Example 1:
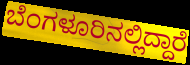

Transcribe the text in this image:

ಬೆಂಗಳೂರಿನಲ್ಲಿದ್ದಾರೆ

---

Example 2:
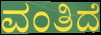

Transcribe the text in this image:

ವಂತಿದೆ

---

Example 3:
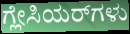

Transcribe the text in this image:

ಗ್ಲೇಸಿಯರ್‌ಗಳು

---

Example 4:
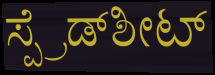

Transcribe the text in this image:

ಸ್ಪ್ರೆಡ್‌ಶೀಟ್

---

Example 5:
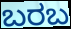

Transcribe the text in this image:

ಬರಬ